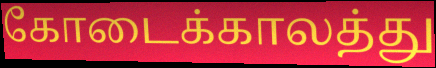
கோடைக்காலத்து